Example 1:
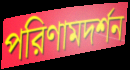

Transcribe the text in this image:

পরিণামদর্শন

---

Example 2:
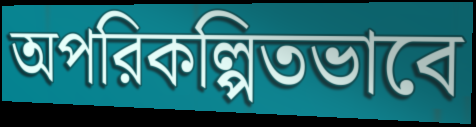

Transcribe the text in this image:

অপরিকল্পিতভাবে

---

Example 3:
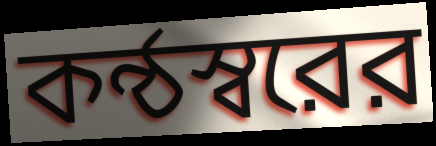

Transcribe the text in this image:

কন্ঠস্বরের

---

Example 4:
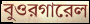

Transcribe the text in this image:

বুওরগারেল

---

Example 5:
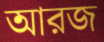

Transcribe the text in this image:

আরজ